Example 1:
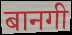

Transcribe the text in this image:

बानगी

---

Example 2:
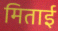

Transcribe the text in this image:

मिताई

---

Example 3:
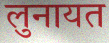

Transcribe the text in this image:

लुनायत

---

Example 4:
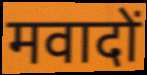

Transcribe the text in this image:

मवादों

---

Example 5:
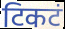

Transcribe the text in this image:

टिकटं